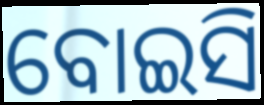
ବୋଇସି